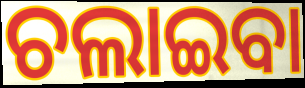
ଚଲାଇବା